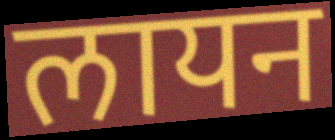
लायन